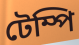
টেম্পি